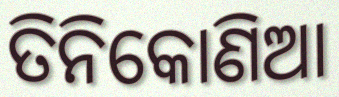
ତିନିକୋଣିଆ